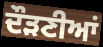
ਦੌੜਣੀਆਂ